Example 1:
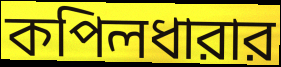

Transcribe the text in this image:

কপিলধারার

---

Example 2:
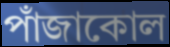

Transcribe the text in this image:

পাঁজাকোল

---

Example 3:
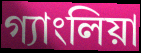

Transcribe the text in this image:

গ্যাংলিয়া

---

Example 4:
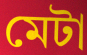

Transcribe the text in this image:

মেটা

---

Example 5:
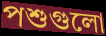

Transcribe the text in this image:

পশুগুলো